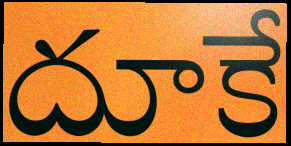
దూకే